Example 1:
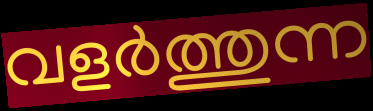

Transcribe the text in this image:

വളർത്തുന്ന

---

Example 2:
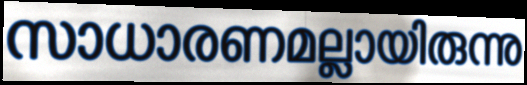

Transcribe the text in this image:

സാധാരണമല്ലായിരുന്നു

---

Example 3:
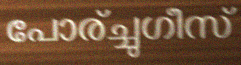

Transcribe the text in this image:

പോര്ച്ചുഗീസ്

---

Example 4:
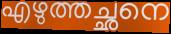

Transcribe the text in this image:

എഴുത്തച്ഛനെ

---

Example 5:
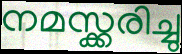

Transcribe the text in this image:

നമസ്ക്കരിച്ചു